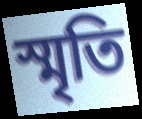
স্মৃতি